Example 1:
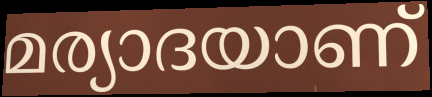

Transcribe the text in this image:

മര്യാദയാണ്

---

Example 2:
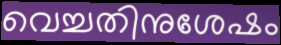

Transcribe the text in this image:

വെച്ചതിനുശേഷം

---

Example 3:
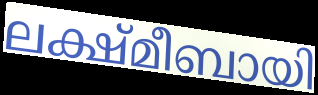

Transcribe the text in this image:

ലക്ഷ്മീബായി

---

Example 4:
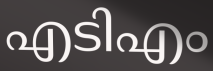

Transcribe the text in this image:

എടിഎം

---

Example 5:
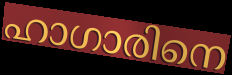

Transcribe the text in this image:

ഹാഗാരിനെ